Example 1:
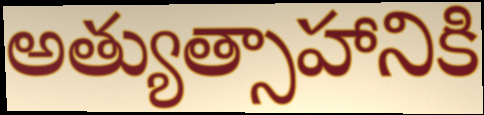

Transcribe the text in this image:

అత్యుత్సాహానికి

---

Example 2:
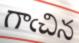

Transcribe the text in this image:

గాఁచిన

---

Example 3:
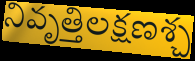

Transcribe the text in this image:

నివృత్తిలక్షణశ్చ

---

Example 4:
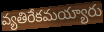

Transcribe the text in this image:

వ్యతిరేకమయ్యారు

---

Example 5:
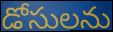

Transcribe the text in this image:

డోసులను